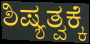
ಶಿಷ್ಯತ್ವಕ್ಕೆ